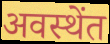
अवस्थेंत